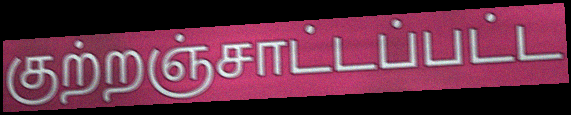
குற்றஞ்சாட்டப்பட்ட